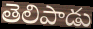
తెలిపాడు